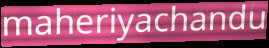
maheriyachandu